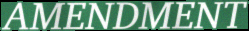
AMENDMENT